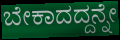
ಬೇಕಾದದ್ದನ್ನೇ